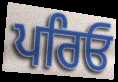
ਪਰਿਓ